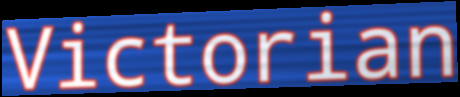
Victorian